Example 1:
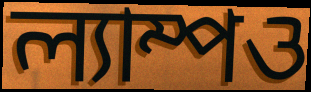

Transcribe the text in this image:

ল্যাম্পও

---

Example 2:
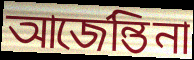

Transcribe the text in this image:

আর্জেন্তিনা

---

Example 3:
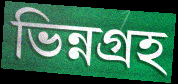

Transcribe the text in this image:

ভিন্নগ্রহ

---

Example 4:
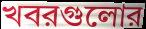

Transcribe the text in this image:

খবরগুলোর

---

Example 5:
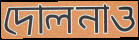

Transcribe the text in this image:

দোলনাও